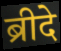
ब्रीदे